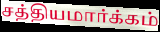
சத்தியமார்க்கம்